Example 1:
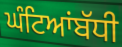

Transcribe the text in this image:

ਘੰਟਿਆਂਬੱਧੀ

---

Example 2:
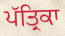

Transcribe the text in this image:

ਪੱਤ੍ਰਿਕਾ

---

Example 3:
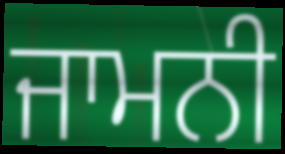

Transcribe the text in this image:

ਜਾਮਨੀ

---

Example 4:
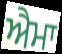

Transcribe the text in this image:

ਐਮਾ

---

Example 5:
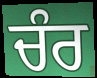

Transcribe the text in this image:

ਚੰਰ